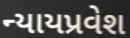
ન્યાયપ્રવેશ